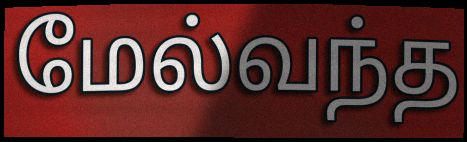
மேல்வந்த